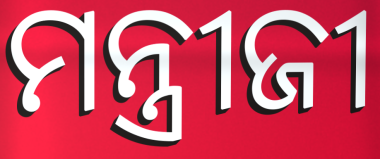
ମନ୍ତ୍ରୀଜୀ